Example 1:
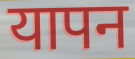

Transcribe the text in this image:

यापन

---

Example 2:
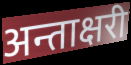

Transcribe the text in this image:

अन्ताक्षरी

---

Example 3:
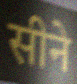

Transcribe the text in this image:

सीने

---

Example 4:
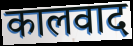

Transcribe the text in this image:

कालवाद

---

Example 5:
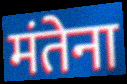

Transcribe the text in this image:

मंतेना